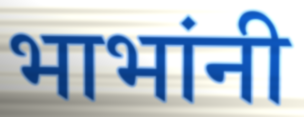
भाभांनी